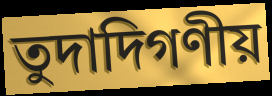
তুদাদিগণীয়